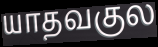
யாதவகுல